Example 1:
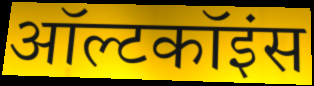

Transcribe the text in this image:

ऑल्टकॉइंस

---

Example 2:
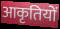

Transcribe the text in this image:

आकृतियों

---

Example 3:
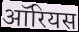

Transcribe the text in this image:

ऑरियस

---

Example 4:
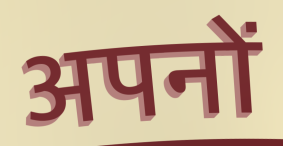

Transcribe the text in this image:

अपनों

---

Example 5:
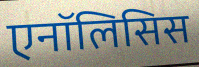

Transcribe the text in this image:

एनॉलिसिस